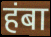
हंबा